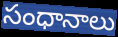
సంధానాలు